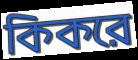
কিকরে